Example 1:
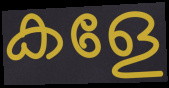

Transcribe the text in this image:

കളേ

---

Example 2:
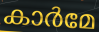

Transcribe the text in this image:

കാർമേ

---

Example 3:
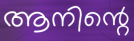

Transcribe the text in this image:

ആനിന്റെ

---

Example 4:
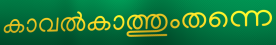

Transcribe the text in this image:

കാവൽകാത്തുംതന്നെ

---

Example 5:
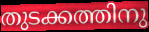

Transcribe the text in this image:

തുടക്കത്തിനു